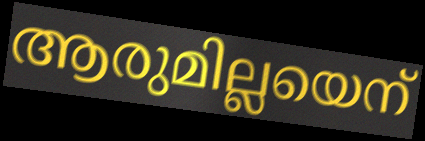
ആരുമില്ലയെന്